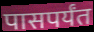
पासपर्यंत